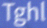
Tghl